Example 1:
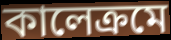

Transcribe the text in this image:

কালেক্রমে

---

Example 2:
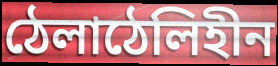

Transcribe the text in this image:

ঠেলাঠেলিহীন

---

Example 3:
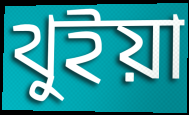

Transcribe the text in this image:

থুইয়া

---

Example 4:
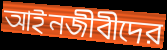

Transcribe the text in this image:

আইনজীবীদের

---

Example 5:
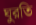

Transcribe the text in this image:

ঘুরতি